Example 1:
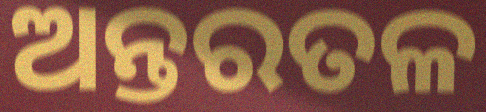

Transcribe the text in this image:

ଅନ୍ତରତଳ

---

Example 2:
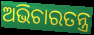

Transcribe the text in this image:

ଅଭିଚାରତନ୍ତ୍ର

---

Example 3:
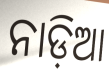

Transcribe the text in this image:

ନାଡ଼ିଆ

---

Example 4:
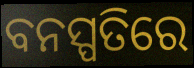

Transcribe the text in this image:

ବନସ୍ପତିରେ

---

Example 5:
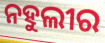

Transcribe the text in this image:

ନହୁଲୀର